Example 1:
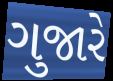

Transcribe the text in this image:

ગુજારે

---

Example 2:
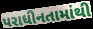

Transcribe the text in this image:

પરાધીનતામાંથી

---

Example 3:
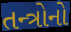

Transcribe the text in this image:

તન્ત્રોનો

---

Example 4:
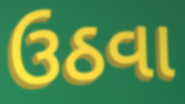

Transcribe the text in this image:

ઉઠવા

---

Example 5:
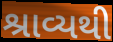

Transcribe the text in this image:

શ્રાવ્યથી